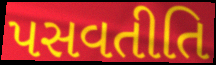
પસવતીતિ